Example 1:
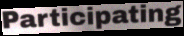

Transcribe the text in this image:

Participating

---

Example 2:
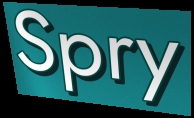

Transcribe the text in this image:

Spry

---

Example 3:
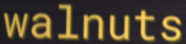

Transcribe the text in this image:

walnuts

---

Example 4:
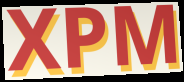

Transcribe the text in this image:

XPM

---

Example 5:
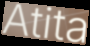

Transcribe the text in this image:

Atita